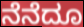
ನೆನೆದೂ